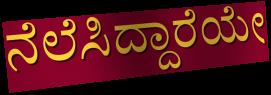
ನೆಲೆಸಿದ್ದಾರೆಯೇ